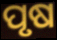
ପୃଷ